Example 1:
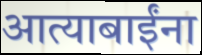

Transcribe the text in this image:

आत्याबाईंना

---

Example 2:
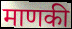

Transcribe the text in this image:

माणकी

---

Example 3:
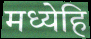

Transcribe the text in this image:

मध्येहि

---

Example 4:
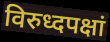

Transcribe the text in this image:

विरुध्दपक्षां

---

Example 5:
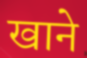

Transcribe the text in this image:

खाने